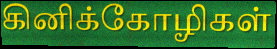
கினிக்கோழிகள்